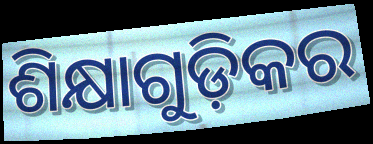
ଶିକ୍ଷାଗୁଡ଼ିକର